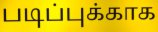
படிப்புக்காக